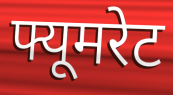
फ्यूमरेट